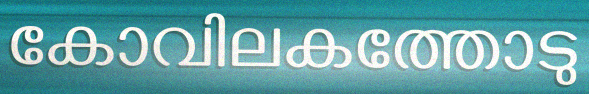
കോവിലകത്തോടു